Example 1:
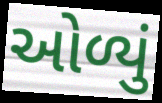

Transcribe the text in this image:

ઓળ્યું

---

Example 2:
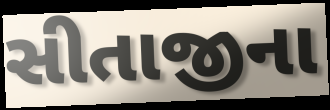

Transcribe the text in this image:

સીતાજીના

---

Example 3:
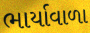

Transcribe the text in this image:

ભાર્યાવાળા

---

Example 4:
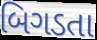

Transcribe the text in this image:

બિગડતા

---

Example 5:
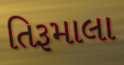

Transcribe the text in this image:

તિરૂમાલા